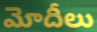
మోదీలు